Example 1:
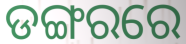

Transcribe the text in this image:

ଡଙ୍ଗରରେ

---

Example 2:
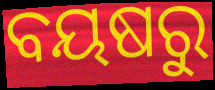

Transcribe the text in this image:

ବୟଷରୁ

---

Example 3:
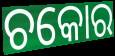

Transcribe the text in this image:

ଚକୋର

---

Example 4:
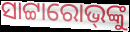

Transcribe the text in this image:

ସାଟ୍ଟାରୋଭ୍‌ଙ୍କୁ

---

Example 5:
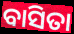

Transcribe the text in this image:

ବାସିତା